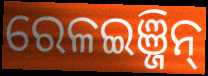
ରେଳଇଞ୍ଜିନ୍